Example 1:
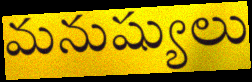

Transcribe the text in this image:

మనుష్యులు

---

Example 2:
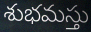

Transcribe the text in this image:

శుభమస్తు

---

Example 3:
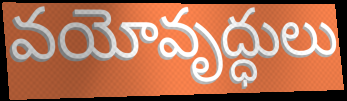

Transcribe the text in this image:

వయోవృద్ధులు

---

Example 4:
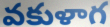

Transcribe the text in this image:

వకుళాగ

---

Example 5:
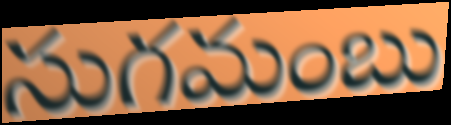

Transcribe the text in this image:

సుగమంబు